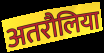
अतरौलिया